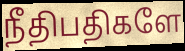
நீதிபதிகளே